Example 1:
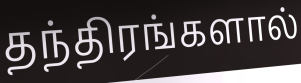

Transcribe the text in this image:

தந்திரங்களால்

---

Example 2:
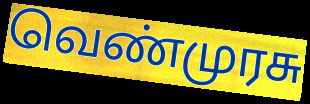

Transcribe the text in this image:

வெண்முரசு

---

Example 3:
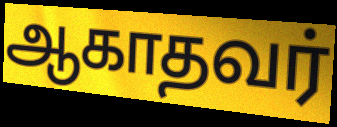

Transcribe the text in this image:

ஆகாதவர்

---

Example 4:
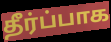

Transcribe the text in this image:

தீர்ப்பாக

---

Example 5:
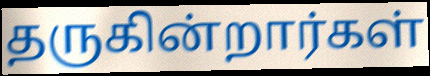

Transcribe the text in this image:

தருகின்றார்கள்